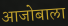
आजोबाला